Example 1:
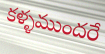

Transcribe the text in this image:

కళ్ళముందరే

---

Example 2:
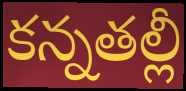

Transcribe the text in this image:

కన్నతల్లీ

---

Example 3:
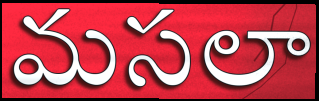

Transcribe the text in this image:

మసలా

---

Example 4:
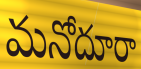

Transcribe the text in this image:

మనోదూరా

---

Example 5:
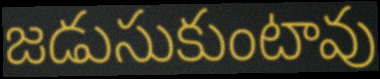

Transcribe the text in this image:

జడుసుకుంటావు